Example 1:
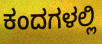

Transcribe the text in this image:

ಕಂದಗಳಲ್ಲಿ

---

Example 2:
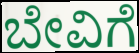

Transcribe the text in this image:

ಬೇವಿಗೆ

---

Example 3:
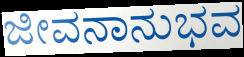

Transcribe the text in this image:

ಜೀವನಾನುಭವ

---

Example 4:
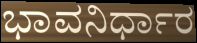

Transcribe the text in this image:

ಭಾವನಿರ್ಧಾರ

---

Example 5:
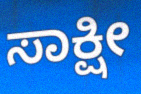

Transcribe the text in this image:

ಸಾಕ್ಷೀ